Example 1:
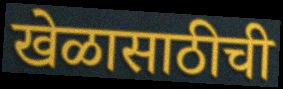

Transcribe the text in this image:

खेळासाठीची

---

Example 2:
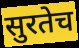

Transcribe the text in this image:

सुरतेच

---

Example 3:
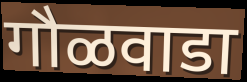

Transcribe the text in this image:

गौळवाडा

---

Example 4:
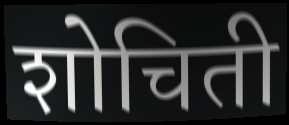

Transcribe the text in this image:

शोचिती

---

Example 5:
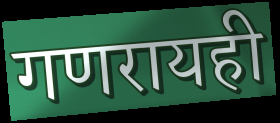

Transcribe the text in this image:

गणरायही